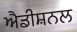
ਐਡੀਸ਼ਨਲ